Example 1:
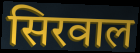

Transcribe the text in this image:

सिरवाल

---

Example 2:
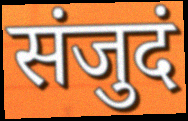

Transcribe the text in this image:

संजुदं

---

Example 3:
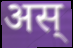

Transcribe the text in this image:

अस्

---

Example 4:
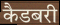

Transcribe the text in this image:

कैडबरी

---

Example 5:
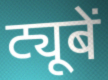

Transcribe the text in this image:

ट्यूबें